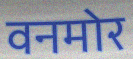
वनमोर